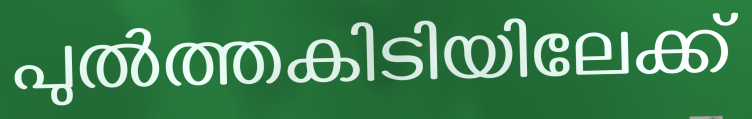
പുൽത്തകിടിയിലേക്ക്